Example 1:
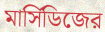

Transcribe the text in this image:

মার্সিডিজের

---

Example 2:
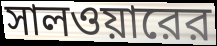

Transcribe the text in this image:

সালওয়ারের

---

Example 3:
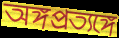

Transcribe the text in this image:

অঙ্গপ্রত্যঙ্গে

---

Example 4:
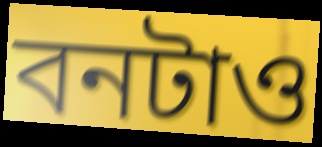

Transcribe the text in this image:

বনটাও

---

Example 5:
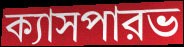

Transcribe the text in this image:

ক্যাসপারভ